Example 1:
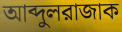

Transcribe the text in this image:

আব্দুলরাজাক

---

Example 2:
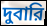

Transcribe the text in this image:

দুবারি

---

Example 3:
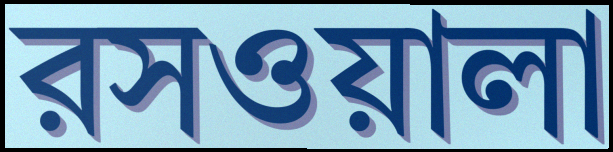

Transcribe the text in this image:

রসওয়ালা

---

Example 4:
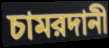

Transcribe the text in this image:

চামরদানী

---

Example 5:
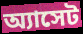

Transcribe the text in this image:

অ্যাসেট